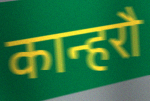
कान्हरौ